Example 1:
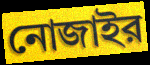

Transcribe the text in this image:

নোজাইর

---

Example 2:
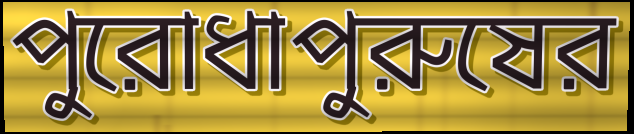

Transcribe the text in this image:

পুরোধাপুরুষের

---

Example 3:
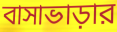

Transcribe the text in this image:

বাসাভাড়ার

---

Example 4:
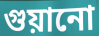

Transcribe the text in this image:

গুয়ানো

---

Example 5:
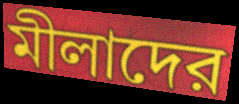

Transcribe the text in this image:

মীলাদের